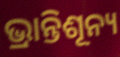
ଭ୍ରାନ୍ତିଶୂନ୍ୟ